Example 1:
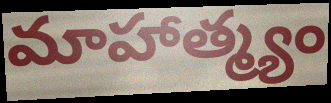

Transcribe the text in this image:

మాహాత్మ్యం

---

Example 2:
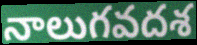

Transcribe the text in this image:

నాలుగవదశ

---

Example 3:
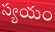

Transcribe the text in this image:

స్యయం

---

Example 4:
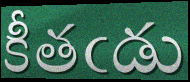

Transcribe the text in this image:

కీతఁడు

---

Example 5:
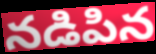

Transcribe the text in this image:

నడిపిన